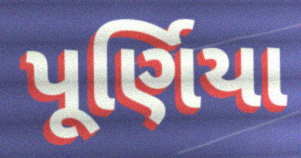
પૂર્ણિયા